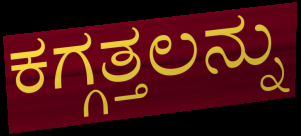
ಕಗ್ಗತ್ತಲನ್ನು